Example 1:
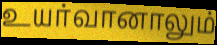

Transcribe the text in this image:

உயர்வானாலும்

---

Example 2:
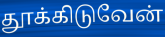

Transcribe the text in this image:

தூக்கிடுவேன்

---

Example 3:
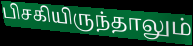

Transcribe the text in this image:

பிசகியிருந்தாலும்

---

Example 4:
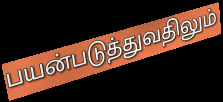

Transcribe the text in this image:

பயன்படுத்துவதிலும்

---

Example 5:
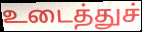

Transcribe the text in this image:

உடைத்துச்